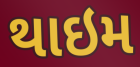
થાઇમ